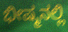
ಭೀಷ್ಮನಲ್ಲಿ